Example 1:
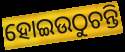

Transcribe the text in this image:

ହୋଇଉଠୁଚନ୍ତି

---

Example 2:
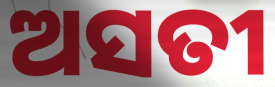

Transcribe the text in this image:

ଅସତୀ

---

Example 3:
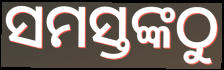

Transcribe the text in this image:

ସମସ୍ତଙ୍କଠୁ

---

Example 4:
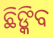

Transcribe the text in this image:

ଛିଙ୍କିବ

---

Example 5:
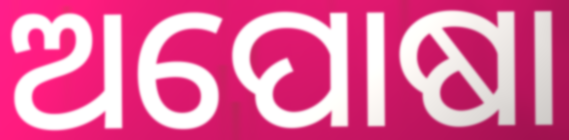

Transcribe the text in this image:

ଅପୋଷା